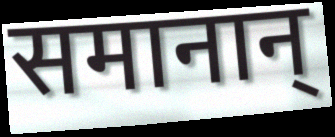
समानान्